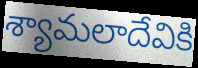
శ్యామలాదేవికి